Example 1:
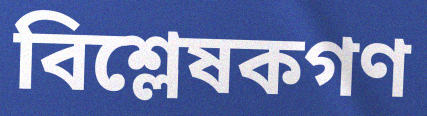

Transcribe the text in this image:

বিশ্লেষকগণ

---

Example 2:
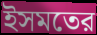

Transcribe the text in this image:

ইসমতের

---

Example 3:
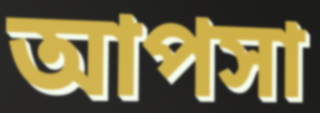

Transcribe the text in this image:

আপসা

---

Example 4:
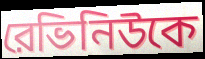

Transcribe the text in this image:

রেভিনিউকে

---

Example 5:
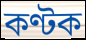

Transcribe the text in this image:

কণ্টক